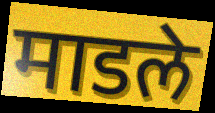
माडले